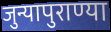
जुन्यापुराण्या